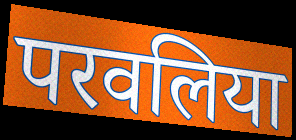
परवलिया